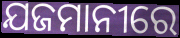
ଯଜମାନୀରେ